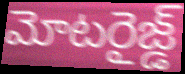
మోటరైజ్డ్